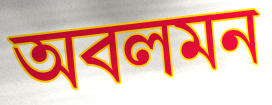
অবলমন